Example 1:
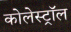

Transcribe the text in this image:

कोलेस्‍ट्रॉल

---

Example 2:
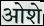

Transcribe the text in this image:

ओशे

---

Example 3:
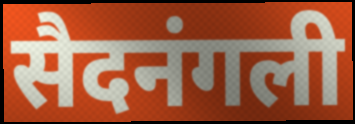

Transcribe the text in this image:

सैदनंगली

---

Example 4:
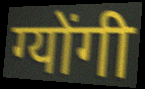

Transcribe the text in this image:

ग्योंगी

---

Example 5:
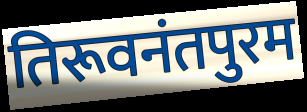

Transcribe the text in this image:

तिरूवनंतपुरम